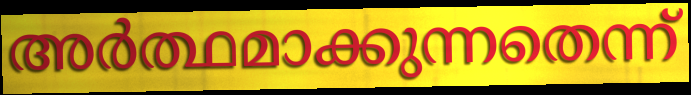
അർത്ഥമാക്കുന്നതെന്ന്